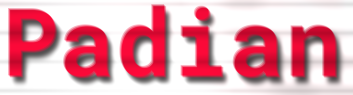
Padian